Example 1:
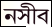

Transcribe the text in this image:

নসীব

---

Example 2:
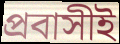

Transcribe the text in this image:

প্রবাসীই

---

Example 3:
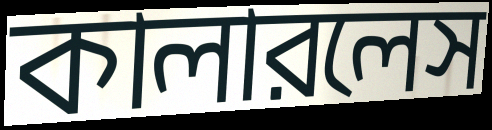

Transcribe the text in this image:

কালারলেস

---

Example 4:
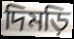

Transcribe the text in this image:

দিমড়ি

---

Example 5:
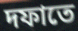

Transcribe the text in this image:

দফাতে